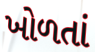
ખોળતાં